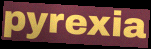
pyrexia